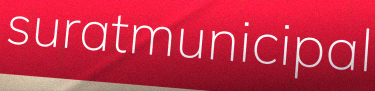
suratmunicipal